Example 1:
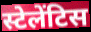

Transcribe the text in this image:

स्टेलेंटिस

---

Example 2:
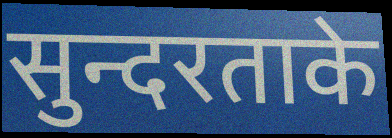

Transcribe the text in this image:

सुन्दरताके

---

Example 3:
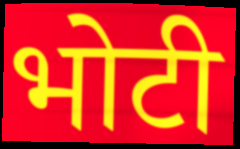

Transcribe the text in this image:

भोटी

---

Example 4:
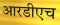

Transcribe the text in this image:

आरडीएच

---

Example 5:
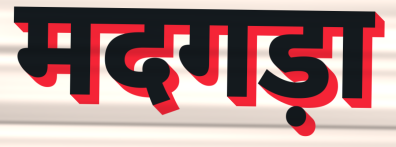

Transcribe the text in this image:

मदगड़ा